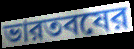
ভারতবষের